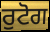
ਰੁਟੋਗ